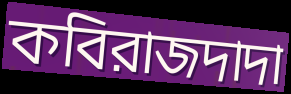
কবিরাজদাদা